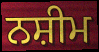
ਨਸ਼ੀਮ